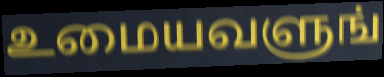
உமையவளுங்